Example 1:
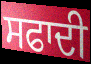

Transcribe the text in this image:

ਸਫਾਦੀ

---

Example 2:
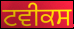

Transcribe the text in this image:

ਟਵੀਕਸ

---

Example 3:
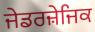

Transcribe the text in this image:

ਜੇਡਰਜ਼ੇਜਿਕ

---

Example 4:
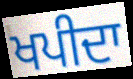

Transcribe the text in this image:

ਖਪੀਦਾ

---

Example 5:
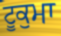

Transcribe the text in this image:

ਟੂਕੁਮਾ